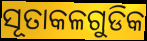
ସୂତାକଳଗୁଡିକ